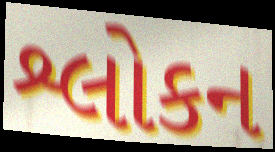
શ્લોકન